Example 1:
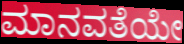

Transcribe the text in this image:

ಮಾನವತೆಯೇ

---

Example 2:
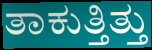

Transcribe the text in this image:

ತಾಕುತ್ತಿತ್ತು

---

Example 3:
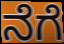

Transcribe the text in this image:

ನೆಗೆ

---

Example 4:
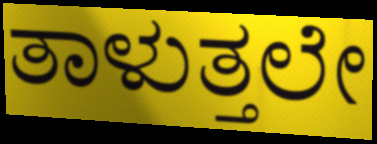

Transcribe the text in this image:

ತಾಳುತ್ತಲೇ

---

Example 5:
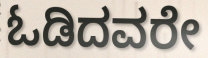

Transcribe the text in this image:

ಓಡಿದವರೇ